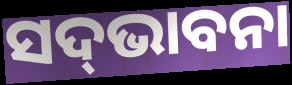
ସଦ୍‌ଭାବନା